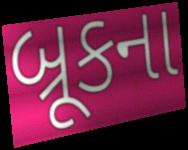
બ્રૂકના